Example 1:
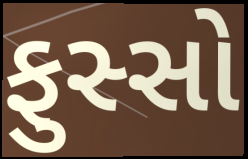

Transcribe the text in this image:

ફુસ્સો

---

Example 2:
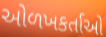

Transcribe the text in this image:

ઓળખકર્તાઓ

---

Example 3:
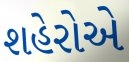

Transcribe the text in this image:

શહેરોએ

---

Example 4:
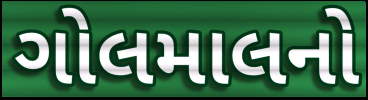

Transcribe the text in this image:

ગોલમાલનો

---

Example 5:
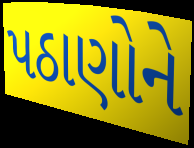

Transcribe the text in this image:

પઠાણોને